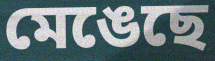
মেঙেছে